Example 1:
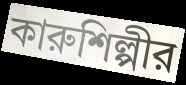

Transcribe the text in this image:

কারুশিল্পীর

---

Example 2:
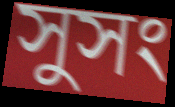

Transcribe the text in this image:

সুসং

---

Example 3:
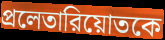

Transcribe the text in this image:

প্রলেতারিয়োতকে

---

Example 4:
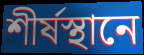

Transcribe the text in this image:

শীর্ষস্থানে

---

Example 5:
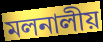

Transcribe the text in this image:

মলনালীয়